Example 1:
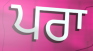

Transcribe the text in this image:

ਪਰਾ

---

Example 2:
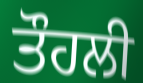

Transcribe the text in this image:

ਤੌਹਲੀ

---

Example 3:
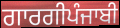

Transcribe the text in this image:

ਗਾਰਗੀਪੰਜਾਬੀ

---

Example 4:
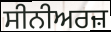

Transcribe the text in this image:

ਸੀਨੀਅਰਜ਼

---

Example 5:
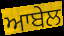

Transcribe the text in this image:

ਆਬੇਲ